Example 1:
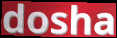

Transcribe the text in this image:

dosha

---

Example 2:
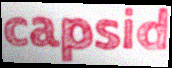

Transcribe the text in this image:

capsid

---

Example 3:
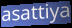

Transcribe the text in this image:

asattiya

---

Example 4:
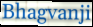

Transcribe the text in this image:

Bhagvanji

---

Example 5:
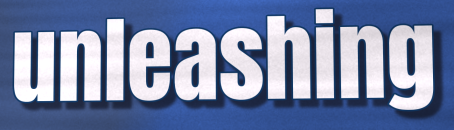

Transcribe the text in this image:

unleashing